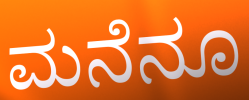
ಮನೆನೂ